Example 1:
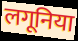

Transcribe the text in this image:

लगूनिया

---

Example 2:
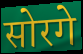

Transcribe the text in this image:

सोरगे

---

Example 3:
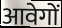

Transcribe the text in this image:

आवेगों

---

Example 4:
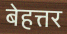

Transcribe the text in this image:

बेहत्तर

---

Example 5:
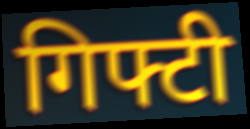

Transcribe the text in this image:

गिफ्टी